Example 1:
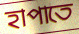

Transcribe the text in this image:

হাপাতে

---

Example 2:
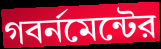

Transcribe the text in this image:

গবর্নমেন্টের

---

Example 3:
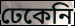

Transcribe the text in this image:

ঢেকেনি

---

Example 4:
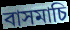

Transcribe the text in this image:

বাসমাচি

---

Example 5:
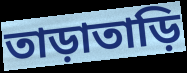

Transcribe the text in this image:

তাড়াতাড়ি